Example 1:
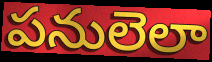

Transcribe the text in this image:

పనులెలా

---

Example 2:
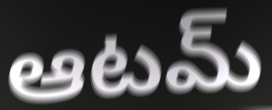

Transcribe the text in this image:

ఆటమ్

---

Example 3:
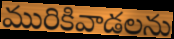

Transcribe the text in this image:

మురికివాడలను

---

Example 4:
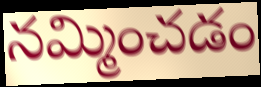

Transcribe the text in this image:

నమ్మించడం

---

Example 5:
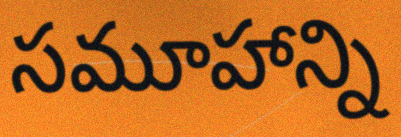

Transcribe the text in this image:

సమూహాన్ని